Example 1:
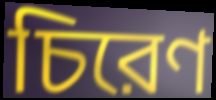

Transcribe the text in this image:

চিরেণ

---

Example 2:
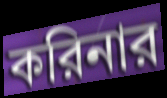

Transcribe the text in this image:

করিনার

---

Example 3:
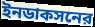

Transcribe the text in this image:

ইনডাকসনের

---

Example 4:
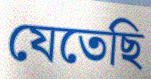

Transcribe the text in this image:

যেতেছি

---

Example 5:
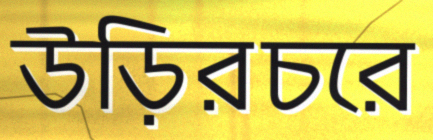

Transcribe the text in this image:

উড়িরচরে